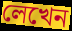
লেখেন